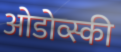
ओडोव्स्की